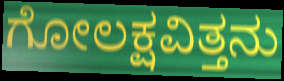
ಗೋಲಕ್ಷವಿತ್ತನು